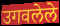
उगवलेले